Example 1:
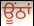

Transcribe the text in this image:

ਊਂਠਾਂ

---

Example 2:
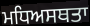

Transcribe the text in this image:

ਮਧਿਅਸਥਤਾ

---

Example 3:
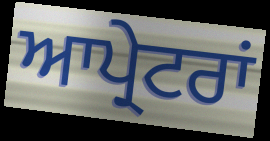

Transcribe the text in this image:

ਆਪ੍ਰੇਟਰਾਂ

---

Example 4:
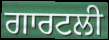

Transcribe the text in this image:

ਗਾਰਟਲੀ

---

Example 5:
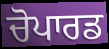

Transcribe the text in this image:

ਚੋਪਾਰਡ